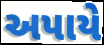
અપાયે